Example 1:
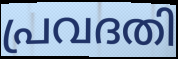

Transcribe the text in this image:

പ്രവദതി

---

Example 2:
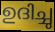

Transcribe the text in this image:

ഉദിച്ചു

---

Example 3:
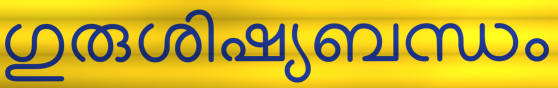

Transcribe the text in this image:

ഗുരുശിഷ്യബന്ധം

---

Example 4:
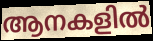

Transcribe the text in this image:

ആനകളിൽ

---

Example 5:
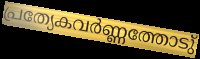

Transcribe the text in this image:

പ്രത്യേകവർണ്ണത്തോടു്